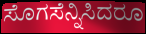
ಸೊಗಸೆನ್ನಿಸಿದರೂ